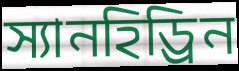
স্যানহিড্রিন